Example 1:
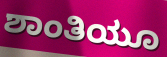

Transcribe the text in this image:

ಶಾಂತಿಯೂ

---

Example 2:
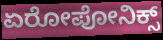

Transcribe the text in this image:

ಏರೋಪೋನಿಕ್ಸ್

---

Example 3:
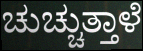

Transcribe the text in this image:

ಚುಚ್ಚುತ್ತಾಳೆ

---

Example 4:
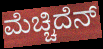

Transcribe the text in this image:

ಮೆಚ್ಚಿದೆನ್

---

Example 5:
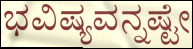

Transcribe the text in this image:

ಭವಿಷ್ಯವನ್ನಷ್ಟೇ